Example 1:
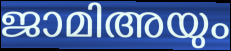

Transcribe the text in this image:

ജാമിഅയും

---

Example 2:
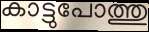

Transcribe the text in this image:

കാട്ടുപോത്തു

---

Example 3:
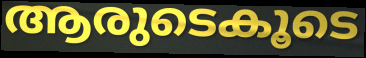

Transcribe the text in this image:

ആരുടെകൂടെ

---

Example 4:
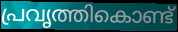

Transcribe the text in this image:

പ്രവൃത്തികൊണ്ട്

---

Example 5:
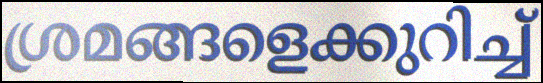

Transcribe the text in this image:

ശ്രമങ്ങളെക്കുറിച്ച്